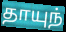
தாயுந்